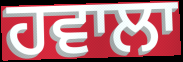
ਹਵਾਲਾ